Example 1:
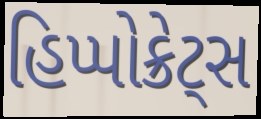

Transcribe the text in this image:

હિપ્પોક્રેટ્સ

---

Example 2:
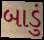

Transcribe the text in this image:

બાડું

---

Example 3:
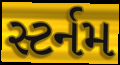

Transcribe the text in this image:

સ્ટર્નમ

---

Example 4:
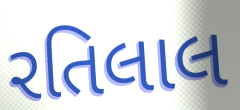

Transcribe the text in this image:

રતિલાલ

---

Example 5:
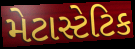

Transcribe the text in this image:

મેટાસ્ટેટિક